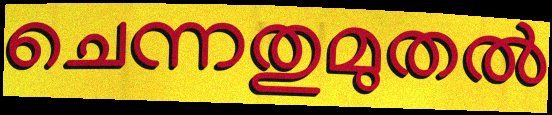
ചെന്നതുമുതൽ